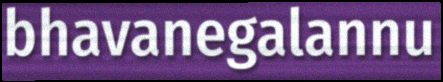
bhavanegalannu